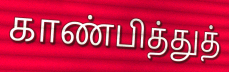
காண்பித்துத்